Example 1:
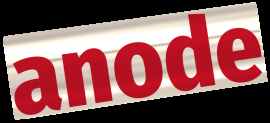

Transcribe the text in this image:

anode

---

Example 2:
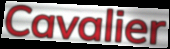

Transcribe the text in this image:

Cavalier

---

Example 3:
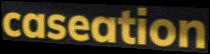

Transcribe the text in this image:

caseation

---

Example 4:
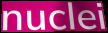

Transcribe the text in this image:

nuclei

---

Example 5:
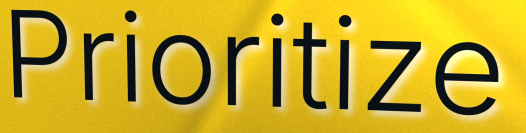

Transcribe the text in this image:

Prioritize